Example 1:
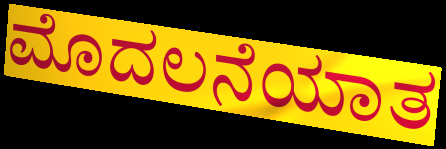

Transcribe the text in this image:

ಮೊದಲನೆಯಾತ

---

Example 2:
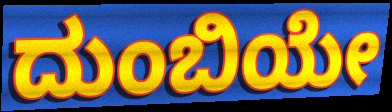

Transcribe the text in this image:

ದುಂಬಿಯೇ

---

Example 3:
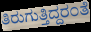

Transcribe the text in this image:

ತಿರುಗುತ್ತಿದ್ದರಂತೆ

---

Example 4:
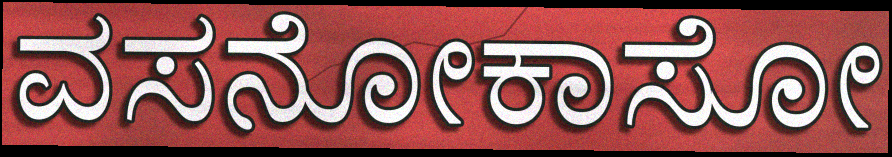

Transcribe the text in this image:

ವಸನೋಕಾಸೋ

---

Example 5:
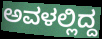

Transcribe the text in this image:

ಅವಳಲ್ಲಿದ್ದ